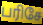
பரிசே